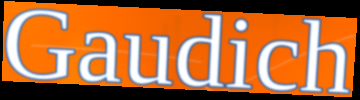
Gaudich